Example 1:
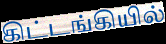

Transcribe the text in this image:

கிட்டங்கியில்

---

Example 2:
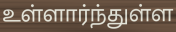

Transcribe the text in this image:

உள்ளார்ந்துள்ள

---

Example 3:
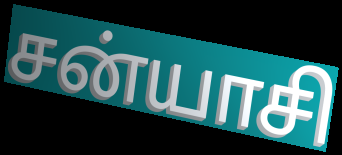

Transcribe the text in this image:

சன்யாசி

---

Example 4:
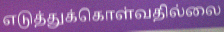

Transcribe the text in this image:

எடுத்துக்கொள்வதில்லை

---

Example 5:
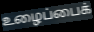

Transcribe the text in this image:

உழைப்பைக்